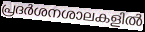
പ്രദർശനശാലകളിൽ